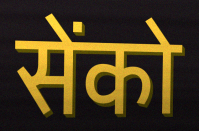
सेंको